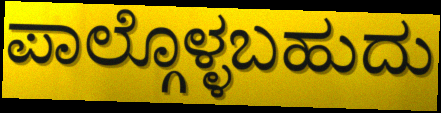
ಪಾಲ್ಗೊಳ್ಳಬಹುದು